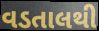
વડતાલથી